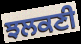
ਝਲਕਣੀ